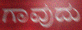
ಗಾವುದು